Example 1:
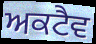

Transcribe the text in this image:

ਅਕਟੈਵ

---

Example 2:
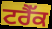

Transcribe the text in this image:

ਟਰੈੱਕ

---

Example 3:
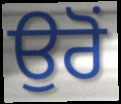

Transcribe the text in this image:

ਉਰੋਂ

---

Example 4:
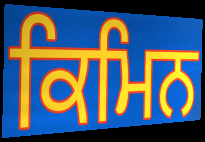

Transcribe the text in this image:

ਕਿਮਿਨ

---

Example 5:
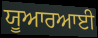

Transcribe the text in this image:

ਯੂਆਰਆਈ